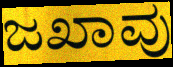
ಜಖಾವು